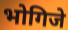
भोगिजे